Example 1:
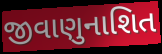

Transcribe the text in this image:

જીવાણુનાશિત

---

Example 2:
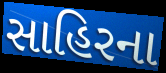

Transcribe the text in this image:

સાહિરના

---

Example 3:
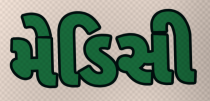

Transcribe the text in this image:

મેડિસી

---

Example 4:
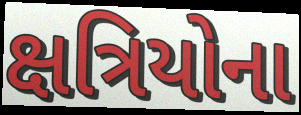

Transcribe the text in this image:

ક્ષત્રિયોના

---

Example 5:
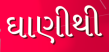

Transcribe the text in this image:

ઘાણીથી